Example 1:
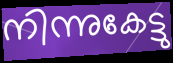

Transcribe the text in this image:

നിന്നുകേട്ടു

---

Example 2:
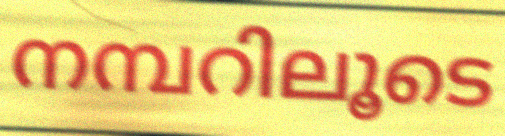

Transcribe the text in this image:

നമ്പറിലൂടെ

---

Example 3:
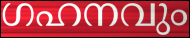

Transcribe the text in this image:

ഗഹനവും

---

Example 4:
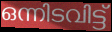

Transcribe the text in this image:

ഒന്നിടവിട്ട്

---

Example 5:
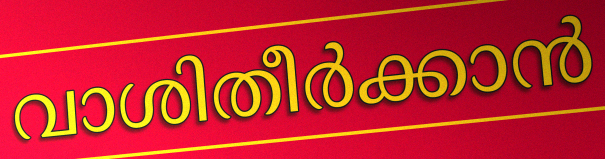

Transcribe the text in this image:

വാശിതീർക്കാൻ